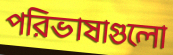
পরিভাষাগুলো